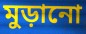
মুড়ানো